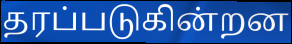
தரப்படுகின்றன